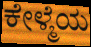
ಕೇಳ್ಮೆಯ